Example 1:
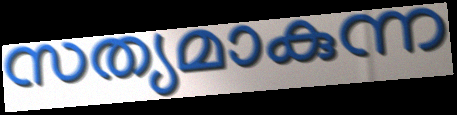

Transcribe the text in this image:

സത്യമാകുന്ന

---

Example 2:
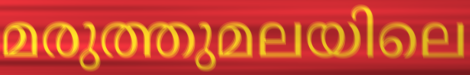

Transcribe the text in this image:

മരുത്തുമലയിലെ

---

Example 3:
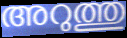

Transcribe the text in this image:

അറുത്തു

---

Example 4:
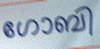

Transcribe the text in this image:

ഗോബി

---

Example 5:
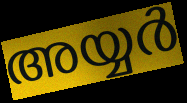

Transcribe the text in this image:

അയ്യർ